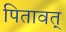
पितावत्